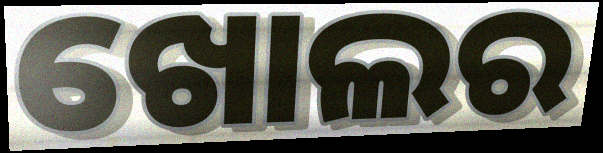
ଖୋଲର